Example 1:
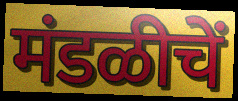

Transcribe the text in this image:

मंडळीचें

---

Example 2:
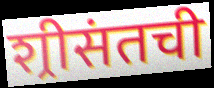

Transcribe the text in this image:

श्रीसंतची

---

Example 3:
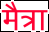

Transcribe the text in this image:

मैत्रा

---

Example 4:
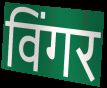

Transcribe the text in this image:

विंगर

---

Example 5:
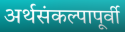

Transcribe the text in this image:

अर्थसंकल्पापूर्वी